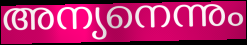
അന്യനെന്നും